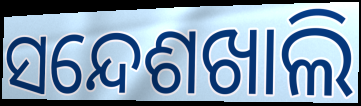
ସନ୍ଦେଶଖାଲି